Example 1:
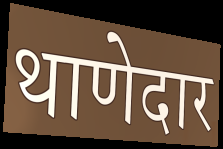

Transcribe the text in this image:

थाणेदार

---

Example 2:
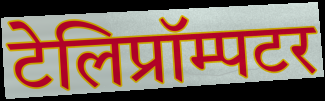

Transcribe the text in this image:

टेलिप्रॉम्पटर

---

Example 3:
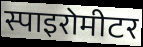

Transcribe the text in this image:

स्पाइरोमीटर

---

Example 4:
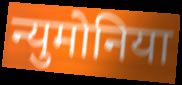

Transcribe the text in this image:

न्युमोनिया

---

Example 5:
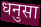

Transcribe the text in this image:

धनुसा